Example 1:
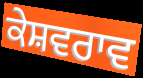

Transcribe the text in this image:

ਕੇਸ਼ਵਰਾਵ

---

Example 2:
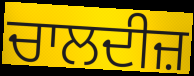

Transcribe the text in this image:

ਚਾਲਦੀਜ਼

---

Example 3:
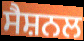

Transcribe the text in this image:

ਸੈਸ਼ਨਲ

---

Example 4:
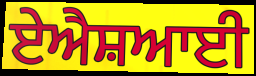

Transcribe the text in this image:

ਏਐਸ਼ਆਈ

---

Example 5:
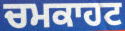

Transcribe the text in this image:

ਚਮਕਾਹਟ